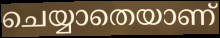
ചെയ്യാതെയാണ്